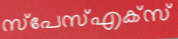
സ്പേസ്എക്സ്